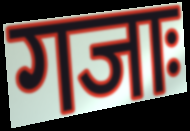
गजाः